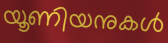
യൂണിയനുകൾ